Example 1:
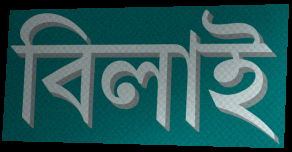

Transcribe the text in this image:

বিলাই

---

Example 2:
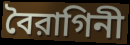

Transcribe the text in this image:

বৈরাগিনী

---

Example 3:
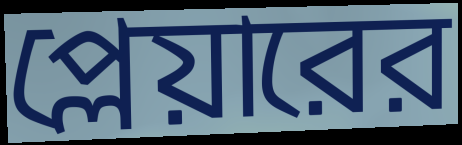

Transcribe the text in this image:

প্লেয়ারের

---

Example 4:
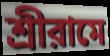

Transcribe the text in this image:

শ্রীরামে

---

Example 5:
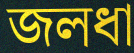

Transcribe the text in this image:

জলধা